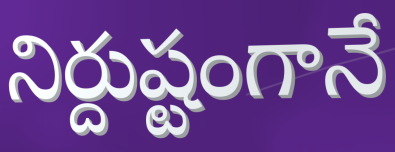
నిర్దుష్టంగానే